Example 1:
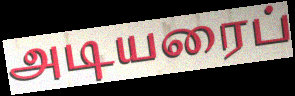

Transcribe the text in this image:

அடியரைப்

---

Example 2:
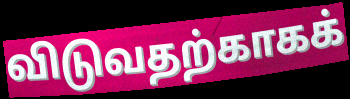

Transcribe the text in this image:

விடுவதற்காகக்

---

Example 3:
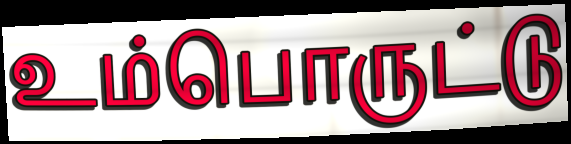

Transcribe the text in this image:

உம்பொருட்டு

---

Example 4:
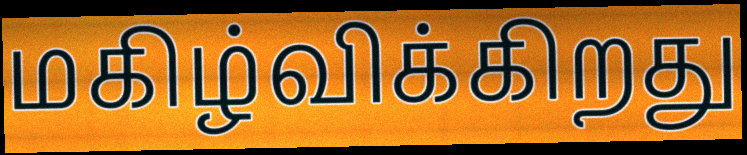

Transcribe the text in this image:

மகிழ்விக்கிறது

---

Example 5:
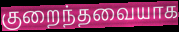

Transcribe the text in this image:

குறைந்தவையாக